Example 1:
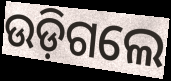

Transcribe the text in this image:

ଉଡ଼ିଗଲେ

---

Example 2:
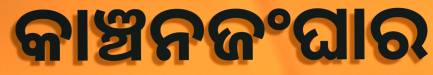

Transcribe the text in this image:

କାଞ୍ଚନଜଂଘାର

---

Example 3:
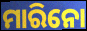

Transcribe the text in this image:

ମାରିନୋ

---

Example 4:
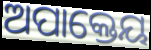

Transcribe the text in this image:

ଅପାକ୍ତେୟ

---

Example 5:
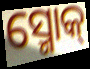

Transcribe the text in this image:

ସ୍ମୋକ୍